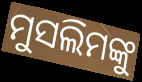
ମୁସଲିମଙ୍କୁ